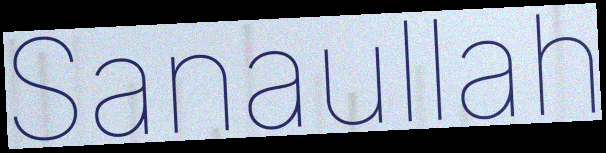
Sanaullah